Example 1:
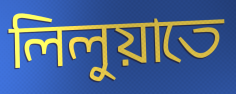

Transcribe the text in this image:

লিলুয়াতে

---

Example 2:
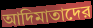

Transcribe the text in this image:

আদিমাতাদের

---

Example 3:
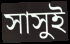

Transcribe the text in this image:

সাসুই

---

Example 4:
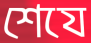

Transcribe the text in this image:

শেযে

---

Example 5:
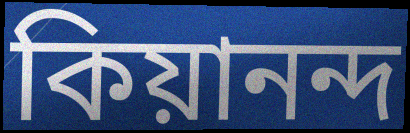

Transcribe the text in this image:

কিয়ানন্দ